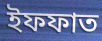
ইফফাত